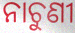
ନାଚୁଣୀ